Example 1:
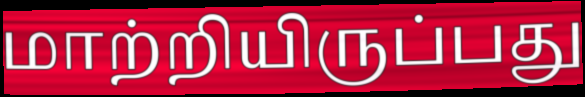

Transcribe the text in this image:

மாற்றியிருப்பது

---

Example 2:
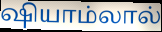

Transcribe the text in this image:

ஷியாம்லால்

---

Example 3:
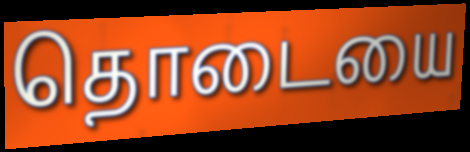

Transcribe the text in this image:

தொடையை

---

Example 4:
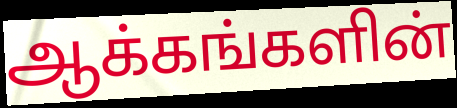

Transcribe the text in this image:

ஆக்கங்களின்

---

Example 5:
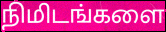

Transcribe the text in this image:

நிமிடங்களை